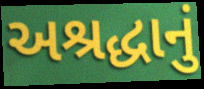
અશ્રદ્ધાનું